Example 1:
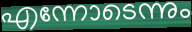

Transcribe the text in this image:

എന്നോടെന്നും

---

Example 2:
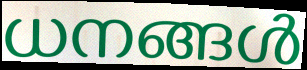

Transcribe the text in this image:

ധനങ്ങൾ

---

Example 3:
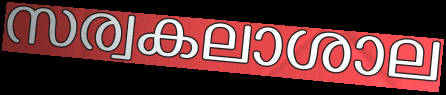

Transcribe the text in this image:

സര്വകലാശാല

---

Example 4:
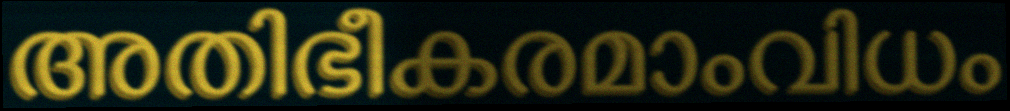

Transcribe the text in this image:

അതിഭീകരമാംവിധം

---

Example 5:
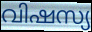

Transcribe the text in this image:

വിഷസ്യ